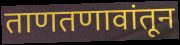
ताणतणावांतून